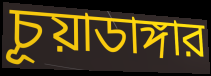
চূয়াডাঙ্গার